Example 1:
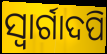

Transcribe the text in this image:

ସ୍ୱାର୍ଗାଦପି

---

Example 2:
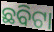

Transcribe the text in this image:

ଛବିଟା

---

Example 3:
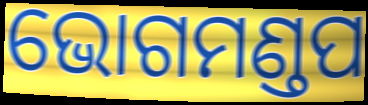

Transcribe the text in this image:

ଭୋଗମଣ୍ଡପ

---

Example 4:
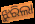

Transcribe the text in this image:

ଝୁରିଲା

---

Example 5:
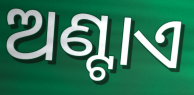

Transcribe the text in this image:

ଅଣ୍ଟାଏ